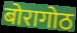
बोरागोठ